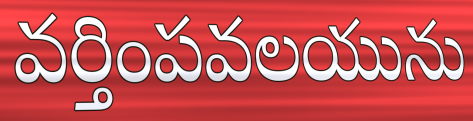
వర్తింపవలయును